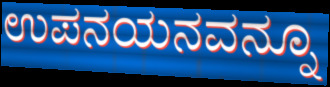
ಉಪನಯನವನ್ನೂ